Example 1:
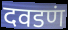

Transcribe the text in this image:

दवडणं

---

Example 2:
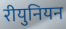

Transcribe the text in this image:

रीयुनियन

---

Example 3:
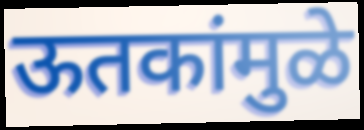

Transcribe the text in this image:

ऊतकांमुळे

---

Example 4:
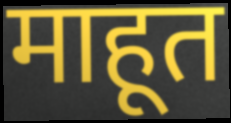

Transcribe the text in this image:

माहूत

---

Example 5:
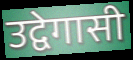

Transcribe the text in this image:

उद्वेगासी